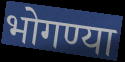
भोगण्या